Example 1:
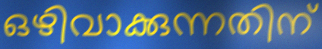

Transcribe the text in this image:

ഒഴിവാക്കുന്നതിന്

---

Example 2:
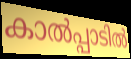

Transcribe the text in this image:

കാൽപ്പാടിൽ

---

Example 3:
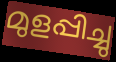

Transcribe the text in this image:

മുളപ്പിച്ചു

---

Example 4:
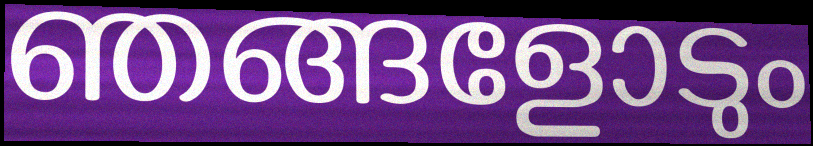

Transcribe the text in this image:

ഞങ്ങളോടും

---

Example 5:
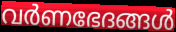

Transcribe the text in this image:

വർണഭേദങ്ങൾ